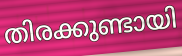
തിരക്കുണ്ടായി